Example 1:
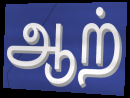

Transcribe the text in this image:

ஆற்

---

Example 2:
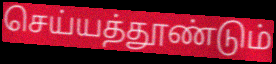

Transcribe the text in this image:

செய்யத்தூண்டும்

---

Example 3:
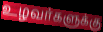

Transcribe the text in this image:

உழவர்களுக்கு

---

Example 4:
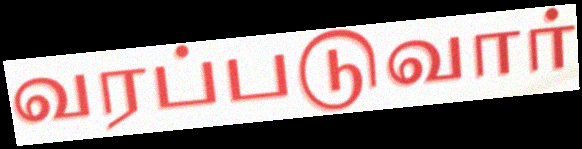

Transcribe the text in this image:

வரப்படுவார்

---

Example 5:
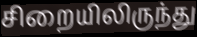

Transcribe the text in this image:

சிறையிலிருந்து